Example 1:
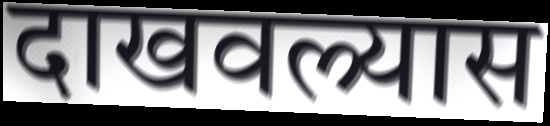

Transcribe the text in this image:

दाखवल्यास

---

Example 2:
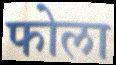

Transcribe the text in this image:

फोला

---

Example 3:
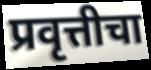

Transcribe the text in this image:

प्रवृत्तीचा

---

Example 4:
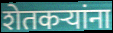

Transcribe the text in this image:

शेतकर्‍यांना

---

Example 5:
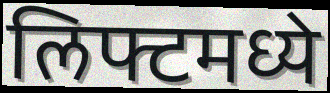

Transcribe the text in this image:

लिफ्टमध्ये